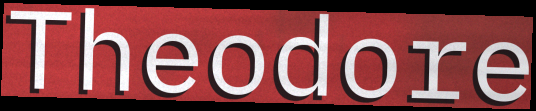
Theodore